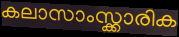
കലാസാംസ്ക്കാരിക